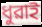
ধুৱাই